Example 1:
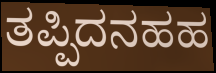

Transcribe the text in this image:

ತಪ್ಪಿದನಹಹ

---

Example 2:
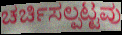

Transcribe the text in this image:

ಚರ್ಚಿಸಲ್ಪಟ್ಟವು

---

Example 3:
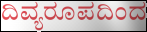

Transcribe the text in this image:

ದಿವ್ಯರೂಪದಿಂದ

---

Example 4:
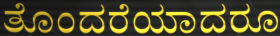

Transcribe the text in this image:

ತೊಂದರೆಯಾದರೂ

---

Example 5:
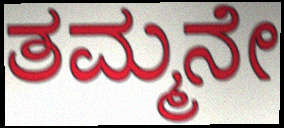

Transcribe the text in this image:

ತಮ್ಮನೇ